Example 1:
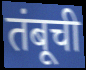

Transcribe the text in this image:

तंबूची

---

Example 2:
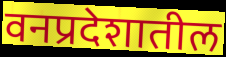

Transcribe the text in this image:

वनप्रदेशातील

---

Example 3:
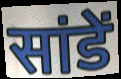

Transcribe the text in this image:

सांडें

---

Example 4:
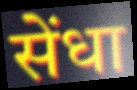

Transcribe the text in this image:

सेंधा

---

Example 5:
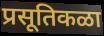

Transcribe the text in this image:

प्रसूतिकळा